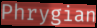
Phrygian